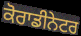
ਕੋਰਾਡੀਨੇਟਰ